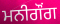
ਮਨੀਗੌਂਗ